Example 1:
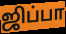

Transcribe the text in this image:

ஜிப்பா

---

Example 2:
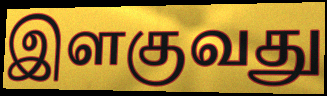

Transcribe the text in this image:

இளகுவது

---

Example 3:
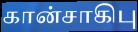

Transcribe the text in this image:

கான்சாகிபு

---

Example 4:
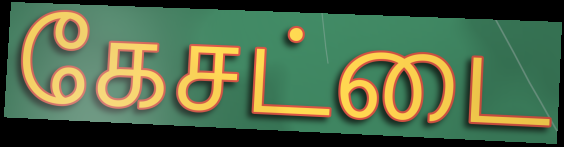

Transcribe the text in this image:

கேசட்டை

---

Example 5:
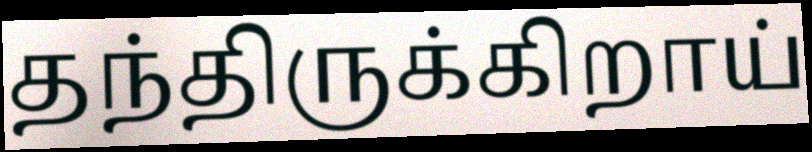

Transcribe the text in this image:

தந்திருக்கிறாய்